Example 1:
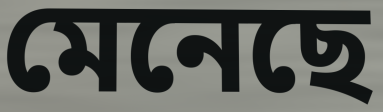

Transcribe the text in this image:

মেনেছে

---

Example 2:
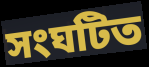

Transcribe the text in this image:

সংঘটিত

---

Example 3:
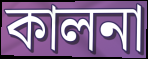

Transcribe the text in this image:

কালনা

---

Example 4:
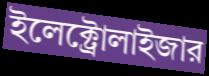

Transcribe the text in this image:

ইলেক্ট্রোলাইজার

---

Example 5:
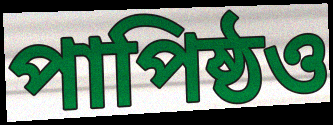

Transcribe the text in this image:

পাপিষ্ঠও